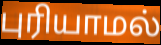
புரியாமல்